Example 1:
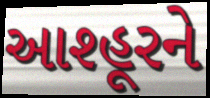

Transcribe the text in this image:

આશ્હૂરને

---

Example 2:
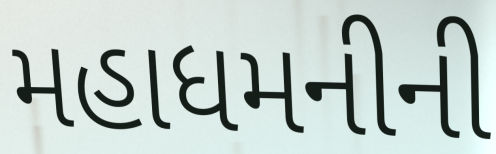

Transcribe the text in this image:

મહાધમનીની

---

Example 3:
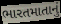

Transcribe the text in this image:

ભારતમાતાનું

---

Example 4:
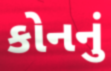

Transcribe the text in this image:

કોનનું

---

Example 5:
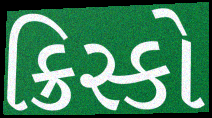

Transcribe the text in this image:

ક્રિસ્કો